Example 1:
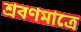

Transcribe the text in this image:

শ্রবণমাত্রে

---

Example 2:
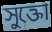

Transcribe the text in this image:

সুক্তো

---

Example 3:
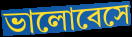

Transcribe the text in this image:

ভালোবেসে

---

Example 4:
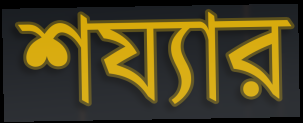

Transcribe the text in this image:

শয্যার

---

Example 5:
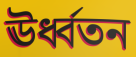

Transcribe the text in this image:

ঊর্ধ্বতন